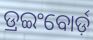
ଡ୍ରଇଂବୋର୍ଡ଼